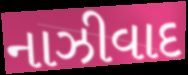
નાઝીવાદ